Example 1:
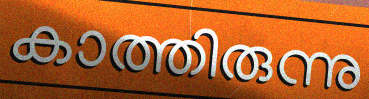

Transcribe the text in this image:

കാത്തിരുന്നു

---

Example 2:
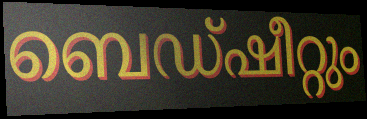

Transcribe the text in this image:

ബെഡ്ഷീറ്റും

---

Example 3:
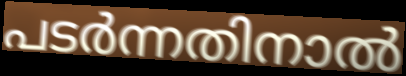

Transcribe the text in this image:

പടർന്നതിനാൽ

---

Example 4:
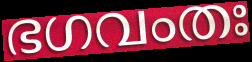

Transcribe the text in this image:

ഭഗവംതഃ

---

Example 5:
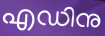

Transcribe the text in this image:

എഡിനു